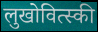
लुखोवित्स्की